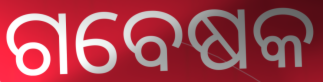
ଗବେଷକ